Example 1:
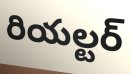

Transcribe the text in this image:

రియల్టర్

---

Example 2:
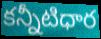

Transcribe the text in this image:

కన్నీటిధార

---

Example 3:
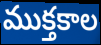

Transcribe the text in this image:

ముక్తకాల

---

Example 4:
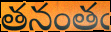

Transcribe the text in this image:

తనంతఁ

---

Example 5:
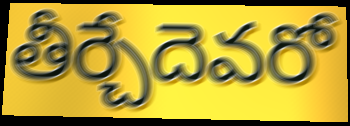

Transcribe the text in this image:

తీర్చేదెవరో